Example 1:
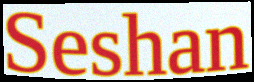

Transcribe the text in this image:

Seshan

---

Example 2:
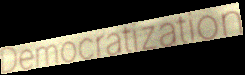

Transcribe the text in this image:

Democratization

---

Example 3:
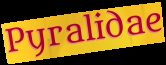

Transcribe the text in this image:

Pyralidae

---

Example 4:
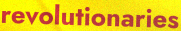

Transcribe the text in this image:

revolutionaries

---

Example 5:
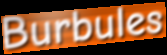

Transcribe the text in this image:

Burbules